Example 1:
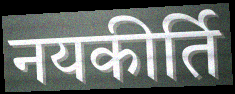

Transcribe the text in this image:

नयकीर्ति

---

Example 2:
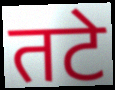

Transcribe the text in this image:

तटे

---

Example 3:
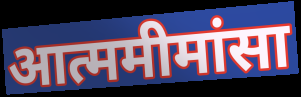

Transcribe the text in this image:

आत्ममीमांसा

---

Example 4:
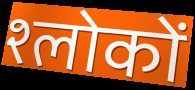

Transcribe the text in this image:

श्लोकों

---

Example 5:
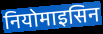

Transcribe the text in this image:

नियोमाइसिन